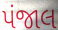
પંજાલ